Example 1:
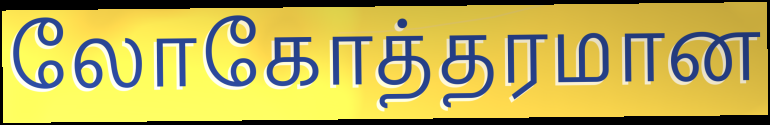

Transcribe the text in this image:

லோகோத்தரமான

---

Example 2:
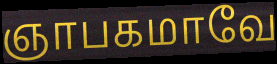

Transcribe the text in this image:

ஞாபகமாவே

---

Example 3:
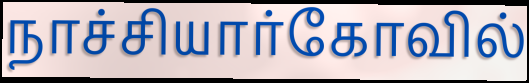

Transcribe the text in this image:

நாச்சியார்கோவில்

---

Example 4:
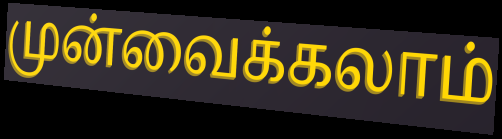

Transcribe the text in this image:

முன்வைக்கலாம்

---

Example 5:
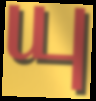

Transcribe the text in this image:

யு